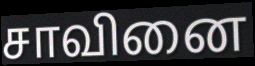
சாவினை